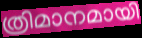
ത്രിമാനമായി